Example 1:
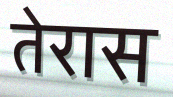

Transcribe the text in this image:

तेरास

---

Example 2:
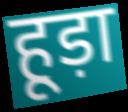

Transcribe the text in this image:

हूड़ा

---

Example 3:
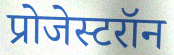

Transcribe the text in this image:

प्रोजेस्टरॉन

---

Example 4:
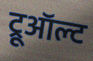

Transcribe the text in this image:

ट्रूऑल्ट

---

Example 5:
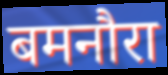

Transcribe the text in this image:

बमनौरा